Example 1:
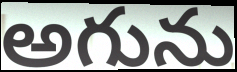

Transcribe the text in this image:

అగును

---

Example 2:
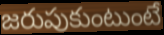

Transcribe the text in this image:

జరుపుకుంటుంటే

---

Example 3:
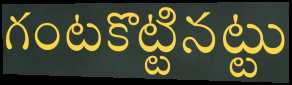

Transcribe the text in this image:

గంటకొట్టినట్టు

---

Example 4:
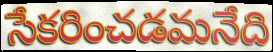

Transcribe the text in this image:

సేకరించడమనేది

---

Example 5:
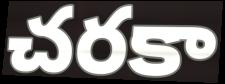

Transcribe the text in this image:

చరకా